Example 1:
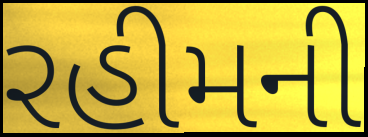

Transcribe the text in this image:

રહીમની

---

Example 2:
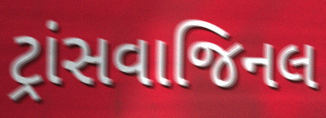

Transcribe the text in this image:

ટ્રાંસવાજિનલ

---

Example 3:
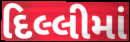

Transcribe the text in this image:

દિલ્લીમાં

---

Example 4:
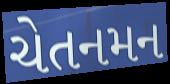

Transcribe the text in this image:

ચેતનમન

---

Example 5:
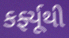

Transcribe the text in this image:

કર્ફ્યૂથી